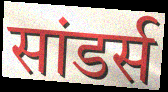
सांडर्स